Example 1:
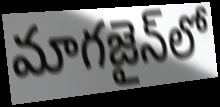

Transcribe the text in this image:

మాగజైన్‌లో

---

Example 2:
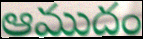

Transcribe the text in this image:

ఆముదం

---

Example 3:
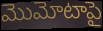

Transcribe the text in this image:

మొమోటాపై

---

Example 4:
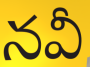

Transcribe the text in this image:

నవీ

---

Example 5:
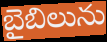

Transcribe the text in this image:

బైబిలును